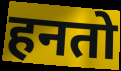
हनतो